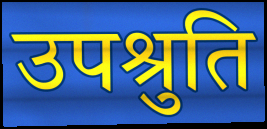
उपश्रुति